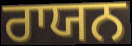
ਰਾਯਨ